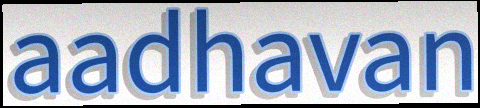
aadhavan